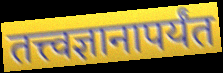
तत्त्वज्ञानापर्यंत